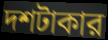
দশটাকার